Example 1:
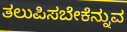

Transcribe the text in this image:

ತಲುಪಿಸಬೇಕೆನ್ನುವ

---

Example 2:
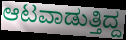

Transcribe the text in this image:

ಆಟವಾಡುತ್ತಿದ್ದ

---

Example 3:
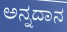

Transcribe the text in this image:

ಅನ್ನದಾನ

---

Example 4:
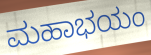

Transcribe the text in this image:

ಮಹಾಭಯಂ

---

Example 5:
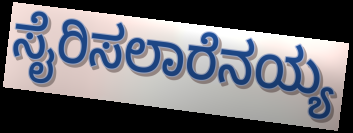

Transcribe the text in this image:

ಸೈರಿಸಲಾರೆನಯ್ಯ